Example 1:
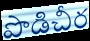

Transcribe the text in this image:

పొడిచీర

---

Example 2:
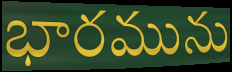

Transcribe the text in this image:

భారమును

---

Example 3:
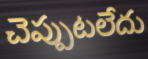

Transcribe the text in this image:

చెప్పుటలేదు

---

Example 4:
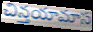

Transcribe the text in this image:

చిన్తయామాస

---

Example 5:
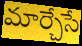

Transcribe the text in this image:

మార్చేసే